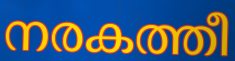
നരകത്തീ